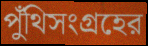
পুঁথিসংগ্রহের